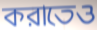
করাতেও